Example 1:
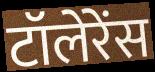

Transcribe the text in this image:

टॉलेरेंस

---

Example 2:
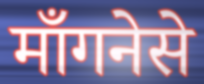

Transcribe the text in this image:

माँगनेसे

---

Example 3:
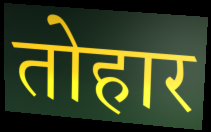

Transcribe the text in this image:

तोहार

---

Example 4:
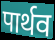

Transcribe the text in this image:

पार्थव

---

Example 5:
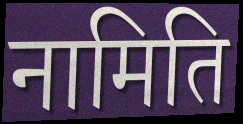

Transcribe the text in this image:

नामिति